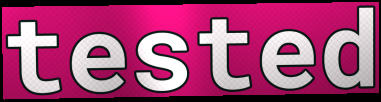
tested